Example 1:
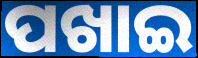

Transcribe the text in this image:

ପଖାଇ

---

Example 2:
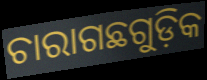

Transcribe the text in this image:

ଚାରାଗଛଗୁଡ଼ିକ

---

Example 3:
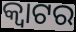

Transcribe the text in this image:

କ୍ୱାଟର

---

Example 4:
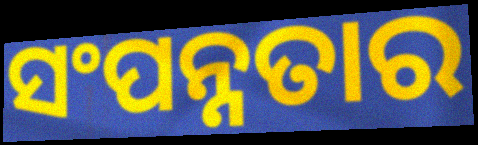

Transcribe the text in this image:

ସଂପନ୍ନତାର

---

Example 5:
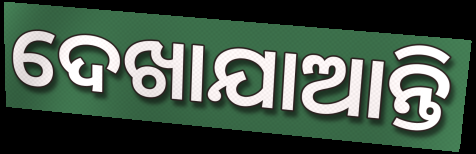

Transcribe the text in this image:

ଦେଖାଯାଆନ୍ତି